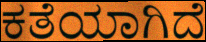
ಕತೆಯಾಗಿದೆ